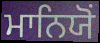
ਮਾਨਿਯੋਂ